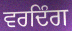
ਵਰਦਿੰਗ